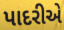
પાદરીએ